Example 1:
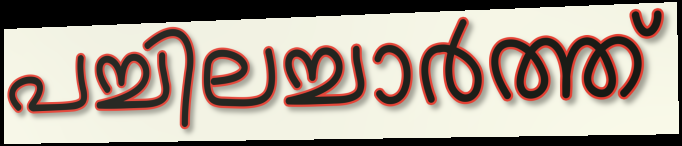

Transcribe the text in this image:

പച്ചിലച്ചാർത്ത്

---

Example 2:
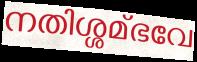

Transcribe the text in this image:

നതിശ്ശമ്ഭവേ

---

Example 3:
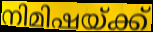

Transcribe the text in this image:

നിമിഷയ്ക്ക്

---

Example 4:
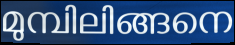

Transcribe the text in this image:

മുമ്പിലിങ്ങനെ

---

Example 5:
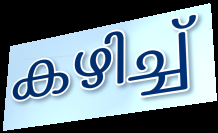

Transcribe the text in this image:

കഴിച്ച്